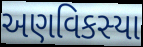
અણવિકસ્યા